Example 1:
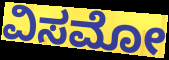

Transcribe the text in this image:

ವಿಸಮೋ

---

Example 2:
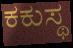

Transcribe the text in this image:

ಕಕುಸ್ಥ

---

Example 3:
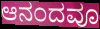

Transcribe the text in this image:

ಆನಂದವೂ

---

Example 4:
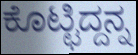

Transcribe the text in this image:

ಕೊಟ್ಟಿದ್ದನ್ನ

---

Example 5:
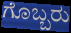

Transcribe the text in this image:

ಗೊಬ್ಬರು